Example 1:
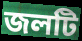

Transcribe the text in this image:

জলটি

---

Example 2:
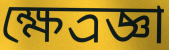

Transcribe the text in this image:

ক্ষেত্রজ্ঞা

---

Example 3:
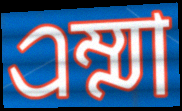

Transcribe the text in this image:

এম্মা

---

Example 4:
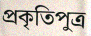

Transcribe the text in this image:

প্রকৃতিপুত্র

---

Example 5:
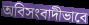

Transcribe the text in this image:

অবিসংবাদীভাবে